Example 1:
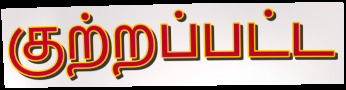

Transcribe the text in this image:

குற்றப்பட்ட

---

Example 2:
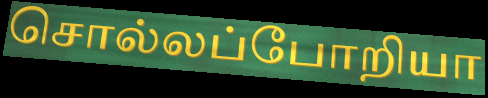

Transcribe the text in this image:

சொல்லப்போறியா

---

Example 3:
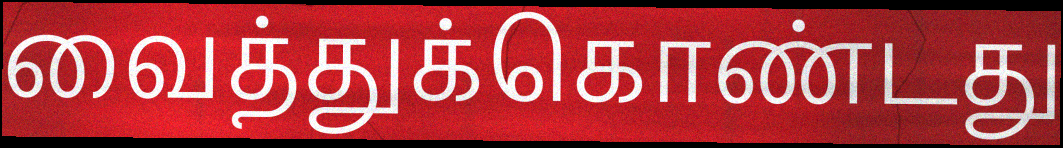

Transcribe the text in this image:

வைத்துக்கொண்டது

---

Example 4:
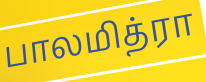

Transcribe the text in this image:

பாலமித்ரா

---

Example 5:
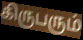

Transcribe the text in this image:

கிருபரும்